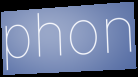
phon